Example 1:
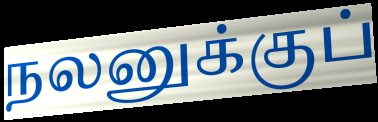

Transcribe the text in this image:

நலனுக்குப்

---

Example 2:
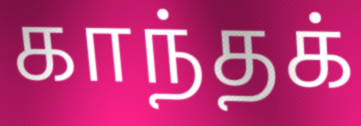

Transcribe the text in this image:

காந்தக்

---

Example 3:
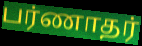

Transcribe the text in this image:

பர்ணாதர்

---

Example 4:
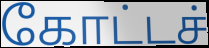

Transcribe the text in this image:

கோட்டச்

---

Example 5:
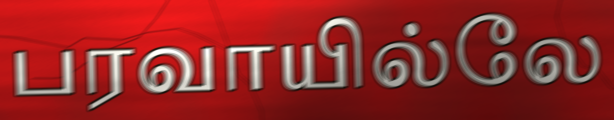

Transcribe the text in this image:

பரவாயில்லே